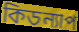
কিডন্যাপ